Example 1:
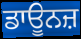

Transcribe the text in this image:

ਡਾਊਨਜ਼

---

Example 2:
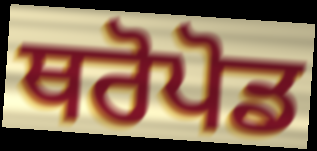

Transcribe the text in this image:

ਥਰੋਪੋਡ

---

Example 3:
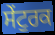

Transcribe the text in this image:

ਸੇਂਟੁਰਕ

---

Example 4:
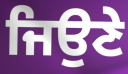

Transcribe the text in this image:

ਜਿਉਣੇ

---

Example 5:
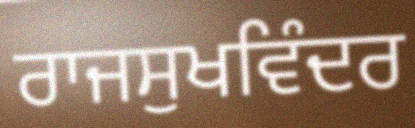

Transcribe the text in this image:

ਰਾਜਸੁਖਵਿੰਦਰ